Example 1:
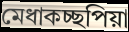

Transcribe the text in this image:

মেধাকচ্ছপিয়া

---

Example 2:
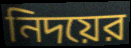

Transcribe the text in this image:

নিদয়ের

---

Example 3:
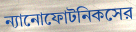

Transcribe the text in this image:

ন্যানোফোটনিকসের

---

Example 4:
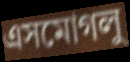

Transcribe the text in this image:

এসমোগলু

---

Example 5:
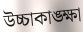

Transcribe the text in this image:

উচ্চাকাঙ্ক্ষা